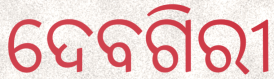
ଦେବଗିରୀ